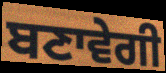
ਬਣਾਵੇਗੀ